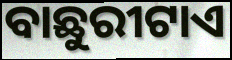
ବାଛୁରୀଟାଏ